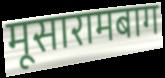
मूसारामबाग